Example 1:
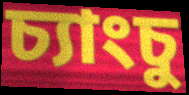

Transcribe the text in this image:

চ্যাংচু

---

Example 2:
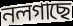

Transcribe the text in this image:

নলগাছে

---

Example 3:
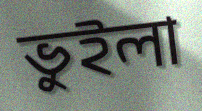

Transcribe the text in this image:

ভুইলা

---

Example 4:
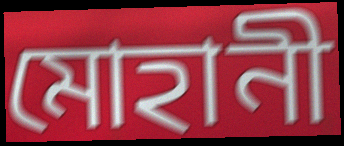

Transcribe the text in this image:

মোহানী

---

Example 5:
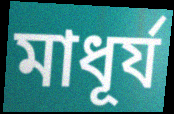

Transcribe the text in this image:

মাধূর্য